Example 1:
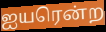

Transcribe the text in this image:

ஐயரென்ற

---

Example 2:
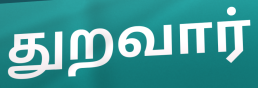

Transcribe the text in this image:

துறவார்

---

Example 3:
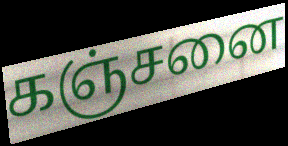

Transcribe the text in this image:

கஞ்சனை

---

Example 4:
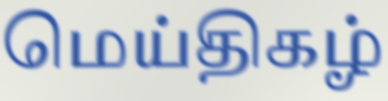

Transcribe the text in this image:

மெய்திகழ்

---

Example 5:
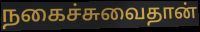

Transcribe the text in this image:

நகைச்சுவைதான்